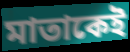
মাতাকেই